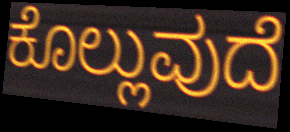
ಕೊಲ್ಲುವುದೆ